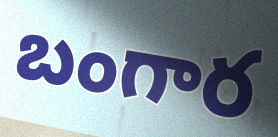
బంగార